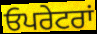
ਓਪਰੇਟਰਾਂ